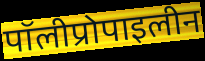
पॉलीप्रोपाइलीन